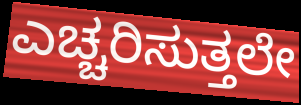
ಎಚ್ಚರಿಸುತ್ತಲೇ